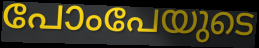
പോംപേയുടെ